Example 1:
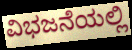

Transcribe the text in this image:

ವಿಭಜನೆಯಲ್ಲಿ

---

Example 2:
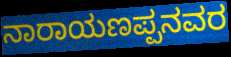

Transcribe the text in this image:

ನಾರಾಯಣಪ್ಪನವರ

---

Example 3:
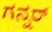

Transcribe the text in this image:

ಗನ್ನರ್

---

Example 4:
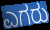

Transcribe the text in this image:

ಎಗರು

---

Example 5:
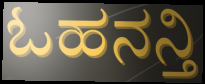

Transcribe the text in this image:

ಓಹನನ್ತಿ